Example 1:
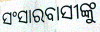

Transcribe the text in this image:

ସଂସାରବାସୀଙ୍କୁ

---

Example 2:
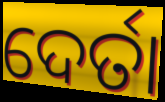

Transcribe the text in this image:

ଦେର୍ତା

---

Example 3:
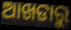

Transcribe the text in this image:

ଆଖଡାରୁ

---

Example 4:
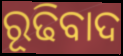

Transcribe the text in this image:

ରୂଢିବାଦ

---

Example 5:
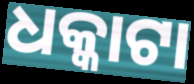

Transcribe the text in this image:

ଧକ୍କାଟା